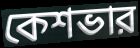
কেশভার